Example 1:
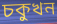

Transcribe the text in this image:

চকুখন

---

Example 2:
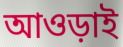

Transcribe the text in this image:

আওড়াই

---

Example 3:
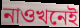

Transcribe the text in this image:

নাওখনেই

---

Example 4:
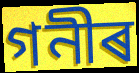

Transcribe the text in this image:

গনীৰ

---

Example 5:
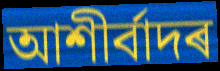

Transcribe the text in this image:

আশীৰ্বাদৰ